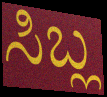
ಸಿಬ್ಲ